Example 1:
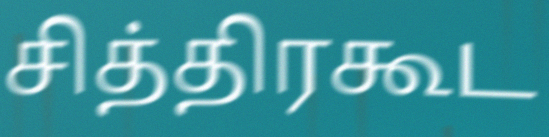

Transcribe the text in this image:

சித்திரகூட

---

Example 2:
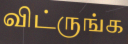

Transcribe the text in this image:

விட்ருங்க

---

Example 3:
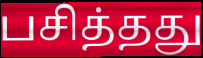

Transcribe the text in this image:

பசித்தது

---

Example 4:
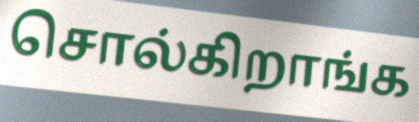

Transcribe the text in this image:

சொல்கிறாங்க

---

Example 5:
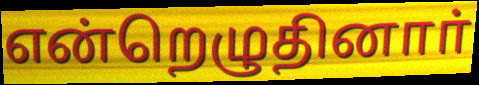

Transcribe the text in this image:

என்றெழுதினார்